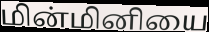
மின்மினியை